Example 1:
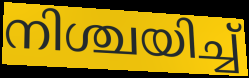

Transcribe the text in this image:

നിശ്ചയിച്ച്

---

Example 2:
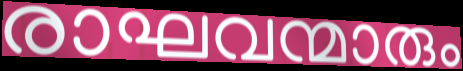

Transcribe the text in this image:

രാഘവന്മാരും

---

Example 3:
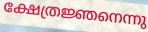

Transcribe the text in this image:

ക്ഷേത്രജ്ഞനെന്നു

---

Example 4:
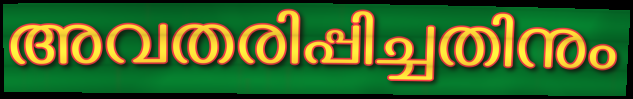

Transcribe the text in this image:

അവതരിപ്പിച്ചതിനും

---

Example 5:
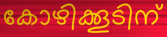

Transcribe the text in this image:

കോഴിക്കൂടിന്